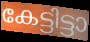
കേട്ടിട്ടാ